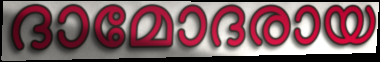
ദാമോദരായ